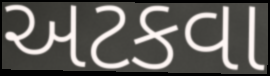
અટકવા